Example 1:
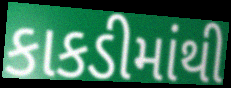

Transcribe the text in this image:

કાકડીમાંથી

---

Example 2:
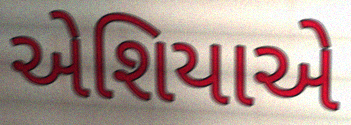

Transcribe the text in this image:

એશિયાએ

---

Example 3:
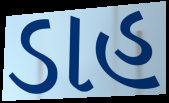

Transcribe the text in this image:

ડાહ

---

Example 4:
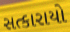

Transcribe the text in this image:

સત્કારાયો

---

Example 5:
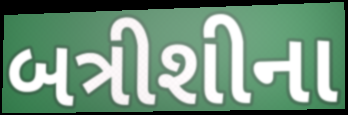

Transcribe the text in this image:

બત્રીશીના